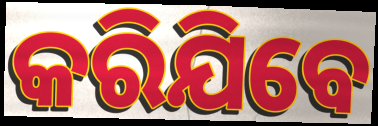
କରିଯିବେ